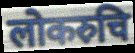
लोकरुचि